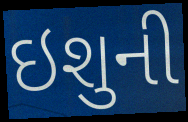
ઇશુની